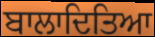
ਬਾਲਾਦਿਤਿਆ